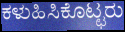
ಕಳುಹಿಸಿಕೊಟ್ಟರು